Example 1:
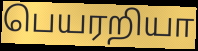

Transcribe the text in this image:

பெயரறியா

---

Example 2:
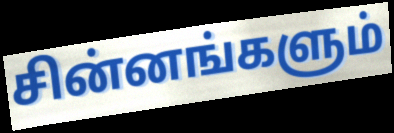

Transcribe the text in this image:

சின்னங்களும்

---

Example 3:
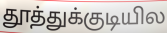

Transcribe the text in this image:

தூத்துக்குடியில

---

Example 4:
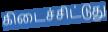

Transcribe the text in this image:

கிடைச்சிட்டுது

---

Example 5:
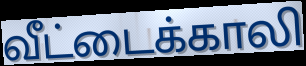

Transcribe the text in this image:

வீட்டைக்காலி